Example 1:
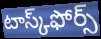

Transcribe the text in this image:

టాస్క్‌ఫోర్స్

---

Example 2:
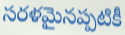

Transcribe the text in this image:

సరళమైనప్పటికీ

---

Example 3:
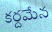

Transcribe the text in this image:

కర్దమేన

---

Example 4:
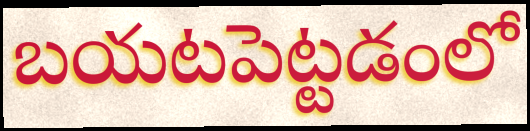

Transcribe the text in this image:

బయటపెట్టడంలో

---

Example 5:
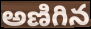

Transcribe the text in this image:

అణిగిన